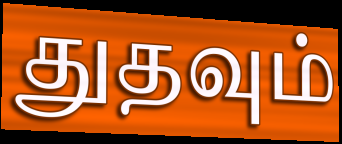
துதவும்